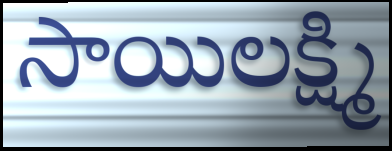
సాయిలక్ష్మి